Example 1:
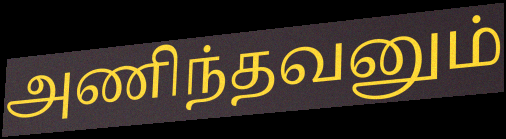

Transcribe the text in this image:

அணிந்தவனும்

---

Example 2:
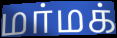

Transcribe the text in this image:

மர்மக்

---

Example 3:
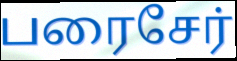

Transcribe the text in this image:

பரைசேர்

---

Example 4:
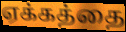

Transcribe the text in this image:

ஏக்கத்தை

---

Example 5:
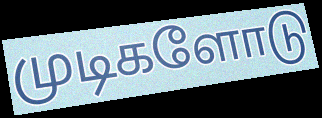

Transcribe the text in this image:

முடிகளோடு